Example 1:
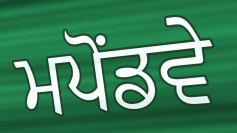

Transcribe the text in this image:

ਮਪੋਂਡਵੇ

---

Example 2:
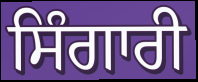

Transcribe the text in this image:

ਸਿੰਗਾਰੀ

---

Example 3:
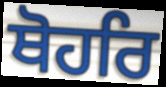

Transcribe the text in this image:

ਥੋਹਰਿ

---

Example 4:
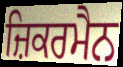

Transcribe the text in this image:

ਜ਼ਿਕਰਮੈਨ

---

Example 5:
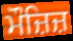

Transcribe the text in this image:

ਮੌਜ਼ਿਜ਼